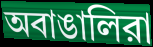
অবাঙালিরা